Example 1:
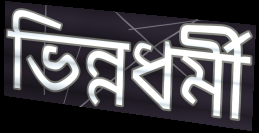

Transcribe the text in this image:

ভিন্নধৰ্মী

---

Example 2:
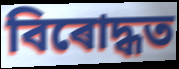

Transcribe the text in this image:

বিৰোদ্ধত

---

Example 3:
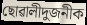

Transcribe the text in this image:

ছোৱালীদুজনীক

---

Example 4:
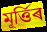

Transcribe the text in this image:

মূৰ্ত্তিৰ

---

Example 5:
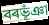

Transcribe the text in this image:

বৰভূঁঞা